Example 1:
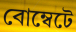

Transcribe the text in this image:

বোম্বেটে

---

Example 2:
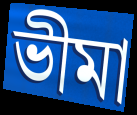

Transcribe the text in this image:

ভীমা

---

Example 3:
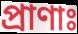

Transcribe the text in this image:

প্রাণাঃ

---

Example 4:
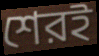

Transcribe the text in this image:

শেরই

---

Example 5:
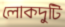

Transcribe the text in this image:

লোকদুটি